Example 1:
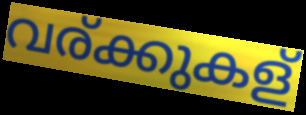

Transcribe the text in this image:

വര്ക്കുകള്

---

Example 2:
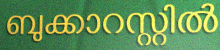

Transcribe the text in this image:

ബുക്കാറസ്റ്റിൽ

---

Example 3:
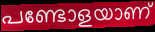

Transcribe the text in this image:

പണ്ടോളയാണ്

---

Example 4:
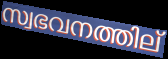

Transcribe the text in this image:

സ്വഭവനത്തില്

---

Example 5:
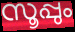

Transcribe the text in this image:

സൂപ്പും